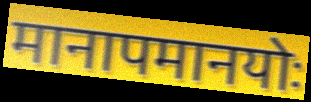
मानापमानयोः